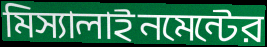
মিস্যালাইনমেন্টের